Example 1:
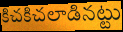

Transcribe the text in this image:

కిచకిచలాడినట్టు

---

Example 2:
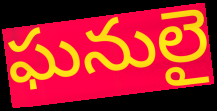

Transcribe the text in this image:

ఘనులై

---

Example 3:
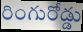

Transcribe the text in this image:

రింగురోడ్డు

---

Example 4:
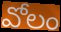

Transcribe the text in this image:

వోలం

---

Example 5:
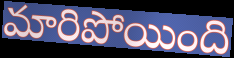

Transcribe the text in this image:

మారిపోయింది